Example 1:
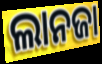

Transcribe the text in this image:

ଲାନଜା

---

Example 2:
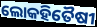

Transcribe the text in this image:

ଲୋକହିତୈଷୀ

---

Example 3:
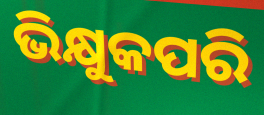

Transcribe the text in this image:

ଭିକ୍ଷୁକପରି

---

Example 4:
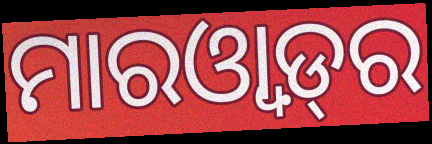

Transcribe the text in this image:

ମାରଓ୍ୱାଡ଼୍‌ର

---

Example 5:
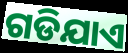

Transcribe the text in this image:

ଗଡିଯାଏ